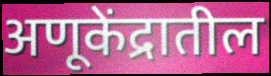
अणूकेंद्रातील